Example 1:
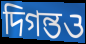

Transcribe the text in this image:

দিগন্তও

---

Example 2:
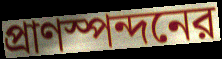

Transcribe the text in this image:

প্রাণস্পন্দনের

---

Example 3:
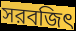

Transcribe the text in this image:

সরবজিৎ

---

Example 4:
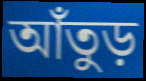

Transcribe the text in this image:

আঁতুড়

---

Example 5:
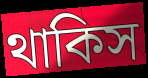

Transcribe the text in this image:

থাকিস